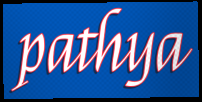
pathya